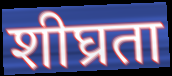
शीघ्रता